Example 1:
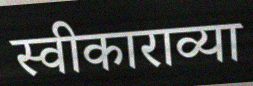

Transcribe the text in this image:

स्वीकाराव्या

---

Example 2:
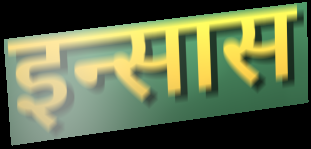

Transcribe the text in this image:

इन्सास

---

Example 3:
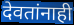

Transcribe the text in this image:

देवतांनाही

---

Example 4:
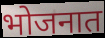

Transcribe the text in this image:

भोजनात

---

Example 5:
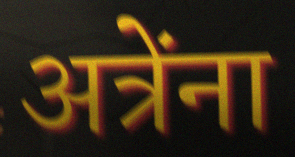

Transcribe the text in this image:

अत्रेंना